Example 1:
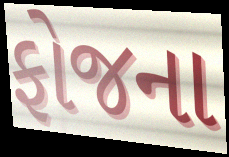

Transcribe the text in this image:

ફોજના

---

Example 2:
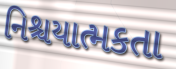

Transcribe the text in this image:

નિશ્ચયાત્મકતા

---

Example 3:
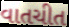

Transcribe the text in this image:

વાતચીત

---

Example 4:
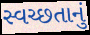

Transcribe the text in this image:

સ્વચ્છતાનું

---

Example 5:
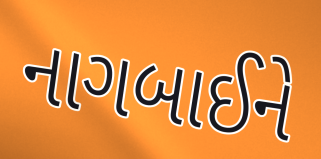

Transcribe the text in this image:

નાગબાઈને